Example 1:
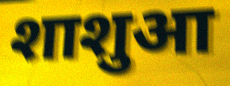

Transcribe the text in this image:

शाशुआ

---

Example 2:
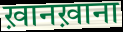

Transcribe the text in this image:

ख़ानख़ाना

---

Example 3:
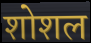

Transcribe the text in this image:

शोशल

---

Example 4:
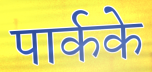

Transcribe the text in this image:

पार्कके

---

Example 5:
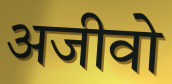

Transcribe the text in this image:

अजीवो